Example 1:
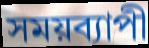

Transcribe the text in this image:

সময়ব্যাপী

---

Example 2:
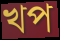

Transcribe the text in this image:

খপ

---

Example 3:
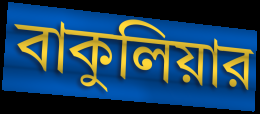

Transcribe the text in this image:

বাকুলিয়ার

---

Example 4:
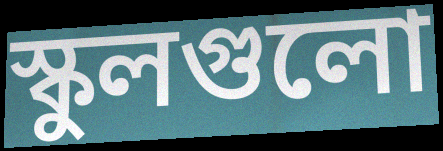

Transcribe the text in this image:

স্কুলগুলো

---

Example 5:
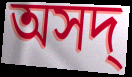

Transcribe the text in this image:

অসদ্